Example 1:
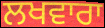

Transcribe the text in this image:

ਲਖਵਾਰਾ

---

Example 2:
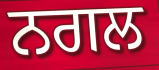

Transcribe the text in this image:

ਨਗਲ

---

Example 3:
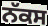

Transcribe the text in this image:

ਨੱਕਸ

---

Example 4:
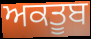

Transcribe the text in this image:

ਅਕਤੂਬ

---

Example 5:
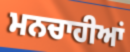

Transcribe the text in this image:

ਮਨਚਾਹੀਆਂ